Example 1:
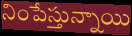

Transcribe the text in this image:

నింపేస్తున్నాయి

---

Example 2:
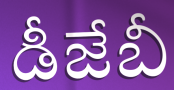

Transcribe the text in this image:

డీజేబీ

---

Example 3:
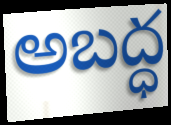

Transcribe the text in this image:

అబద్ధ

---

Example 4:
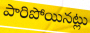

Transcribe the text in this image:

పారిపోయినట్లు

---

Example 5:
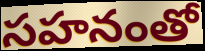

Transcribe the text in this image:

సహనంతో